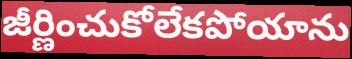
జీర్ణించుకోలేకపోయాను